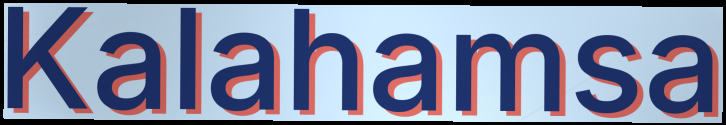
Kalahamsa